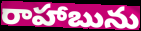
రాహాబును